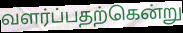
வளர்ப்பதற்கென்று